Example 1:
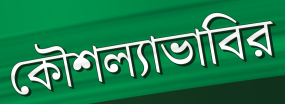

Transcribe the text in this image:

কৌশল্যাভাবির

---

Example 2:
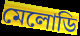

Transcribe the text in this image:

মেলোডি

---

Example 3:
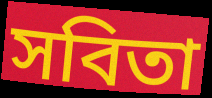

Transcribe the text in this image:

সবিতা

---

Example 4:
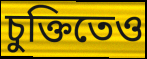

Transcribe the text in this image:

চুক্তিতেও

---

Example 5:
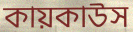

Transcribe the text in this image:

কায়কাউস